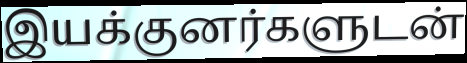
இயக்குனர்களுடன்